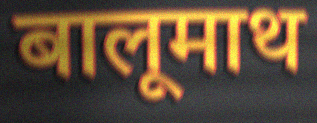
बालूमाथ